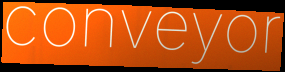
conveyor